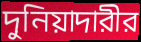
দুনিয়াদারীর